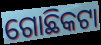
ଗୋଛିକଟା